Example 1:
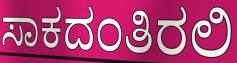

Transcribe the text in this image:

ಸಾಕದಂತಿರಲಿ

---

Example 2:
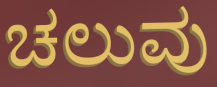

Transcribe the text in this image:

ಚಲುವು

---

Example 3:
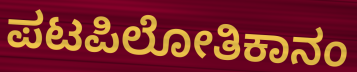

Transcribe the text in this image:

ಪಟಪಿಲೋತಿಕಾನಂ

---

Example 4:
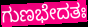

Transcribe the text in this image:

ಗುಣಭೇದತಃ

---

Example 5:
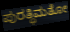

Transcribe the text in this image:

ಪುರತ್ಥಿಮತೋ